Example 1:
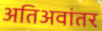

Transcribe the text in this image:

अतिअवांतर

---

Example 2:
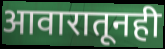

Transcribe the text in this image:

आवारातूनही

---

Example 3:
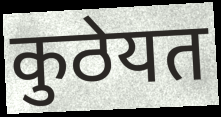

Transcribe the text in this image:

कुठेयत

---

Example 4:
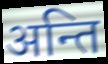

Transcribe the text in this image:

अन्ति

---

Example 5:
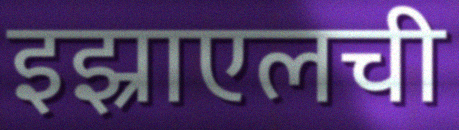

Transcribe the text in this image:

इझ्राएलची